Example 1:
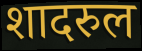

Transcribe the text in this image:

शादरुल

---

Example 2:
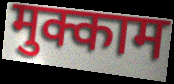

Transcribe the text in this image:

मुक्काम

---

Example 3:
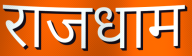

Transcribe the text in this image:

राजधाम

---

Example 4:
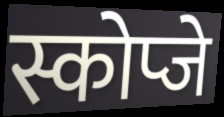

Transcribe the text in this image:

स्कोप्जे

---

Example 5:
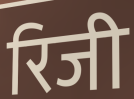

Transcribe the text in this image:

रिजी